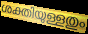
ശക്തിയുള്ളതും